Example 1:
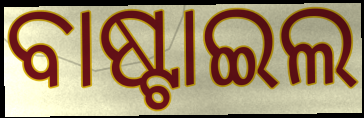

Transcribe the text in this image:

ବାଷ୍ଟାଇଲ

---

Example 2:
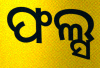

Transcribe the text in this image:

ଫଲ୍ସ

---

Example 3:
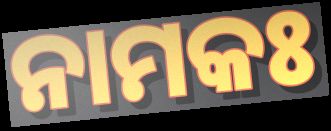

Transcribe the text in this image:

ନାମକଃ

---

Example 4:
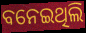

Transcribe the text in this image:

ବନେଇଥିଲି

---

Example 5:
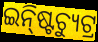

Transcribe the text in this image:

ଇନ୍ଷ୍ଟିଚ୍ୟୁଟ୍ର